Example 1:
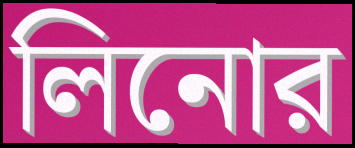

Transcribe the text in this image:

লিনোর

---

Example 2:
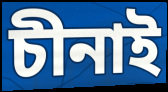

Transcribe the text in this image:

চীনাই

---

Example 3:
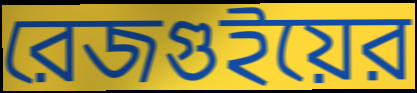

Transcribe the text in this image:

রেজগুইয়ের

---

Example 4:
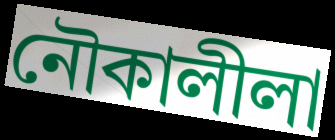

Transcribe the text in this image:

নৌকালীলা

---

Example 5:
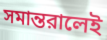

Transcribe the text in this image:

সমান্তরালেই